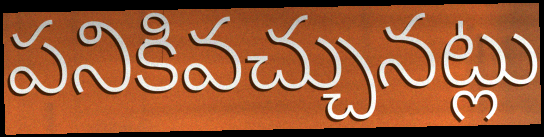
పనికివచ్చునట్లు